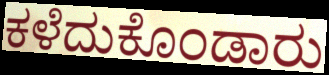
ಕಳೆದುಕೊಂಡಾರು